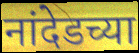
नांदेडच्या